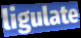
ligulate